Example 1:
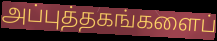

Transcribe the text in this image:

அப்புத்தகங்களைப்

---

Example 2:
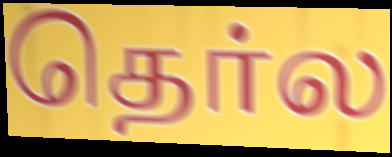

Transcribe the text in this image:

தெர்ல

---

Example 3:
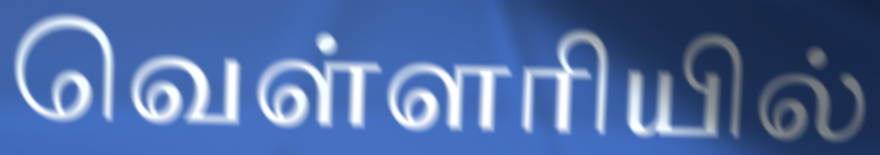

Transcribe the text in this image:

வெள்ளரியில்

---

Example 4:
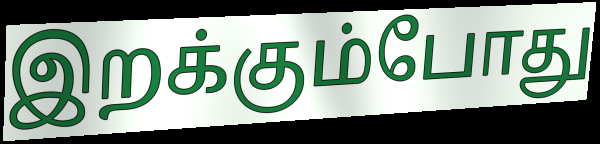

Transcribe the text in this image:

இறக்கும்போது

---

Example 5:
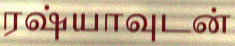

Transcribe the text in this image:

ரஷ்யாவுடன்